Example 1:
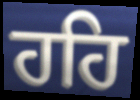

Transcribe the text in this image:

ਹਹਿ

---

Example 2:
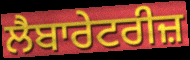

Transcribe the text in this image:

ਲੈਬਾਰੇਟਰੀਜ਼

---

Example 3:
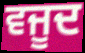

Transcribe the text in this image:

ਵਜੂਦ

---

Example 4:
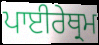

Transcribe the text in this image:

ਪਾਈਰੇਥ੍ਰਮ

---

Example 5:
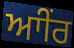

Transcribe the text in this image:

ਆੀਂਰ